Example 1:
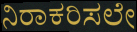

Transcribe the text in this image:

ನಿರಾಕರಿಸಲೇ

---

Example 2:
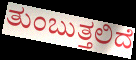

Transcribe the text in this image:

ತುಂಬುತ್ತಲಿದೆ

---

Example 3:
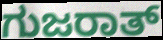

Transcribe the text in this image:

ಗುಜರಾತ್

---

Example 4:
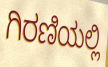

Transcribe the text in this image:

ಗಿರಣಿಯಲ್ಲಿ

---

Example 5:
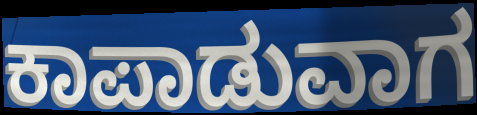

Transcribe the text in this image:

ಕಾಪಾಡುವಾಗ